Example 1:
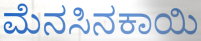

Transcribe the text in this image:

ಮೆನಸಿನಕಾಯಿ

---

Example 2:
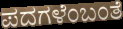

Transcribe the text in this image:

ಪದಗಳೆಂಬಂತೆ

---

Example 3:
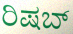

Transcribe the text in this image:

ರಿಷಬ್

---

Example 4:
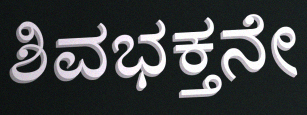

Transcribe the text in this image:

ಶಿವಭಕ್ತನೇ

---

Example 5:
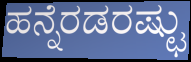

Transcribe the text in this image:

ಹನ್ನೆರಡರಷ್ಟು